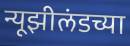
न्यूझीलंडच्या